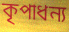
কৃপাধন্য